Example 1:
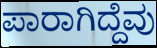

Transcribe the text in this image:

ಪಾರಾಗಿದ್ದೆವು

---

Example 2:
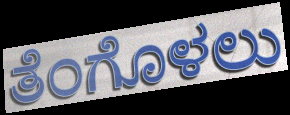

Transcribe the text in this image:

ತೆಂಗೊಳಲು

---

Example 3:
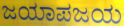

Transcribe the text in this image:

ಜಯಾಪಜಯ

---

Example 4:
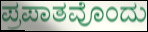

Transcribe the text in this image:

ಪ್ರಪಾತವೊಂದು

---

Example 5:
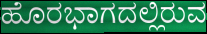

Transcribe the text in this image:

ಹೊರಭಾಗದಲ್ಲಿರುವ